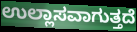
ಉಲ್ಲಾಸವಾಗುತ್ತದೆ